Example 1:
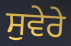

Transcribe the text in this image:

ਸੁਵੇਰੇ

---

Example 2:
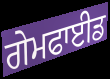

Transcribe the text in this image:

ਗੇਮਫਾਈਡ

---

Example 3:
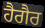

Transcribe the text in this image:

ਹੈਗੈਰ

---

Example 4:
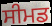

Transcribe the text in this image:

ਸੀਮਡ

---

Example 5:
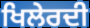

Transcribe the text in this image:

ਖਿਲੇਰਦੀ